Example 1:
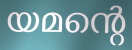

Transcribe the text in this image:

യമന്റെ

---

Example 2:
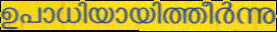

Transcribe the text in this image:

ഉപാധിയായിത്തീർന്നു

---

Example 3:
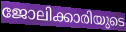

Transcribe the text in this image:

ജോലിക്കാരിയുടെ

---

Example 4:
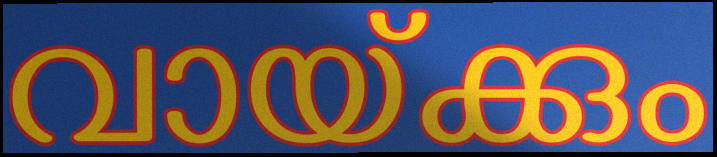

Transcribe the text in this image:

വായ്‌ക്കും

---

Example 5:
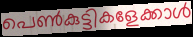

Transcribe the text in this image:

പെൺകുട്ടികളേക്കാൾ